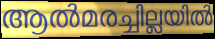
ആൽമരച്ചില്ലയിൽ